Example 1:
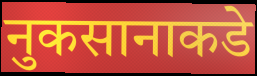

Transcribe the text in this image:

नुकसानाकडे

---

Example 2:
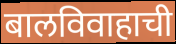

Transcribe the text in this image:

बालविवाहाची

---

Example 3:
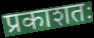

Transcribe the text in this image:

प्रकाशतः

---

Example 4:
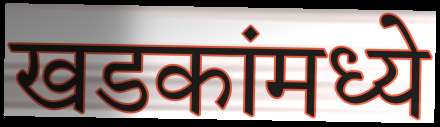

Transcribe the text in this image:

खडकांमध्ये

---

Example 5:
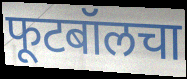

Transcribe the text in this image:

फूटबॉलचा